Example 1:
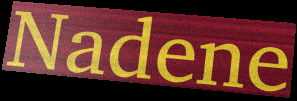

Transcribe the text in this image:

Nadene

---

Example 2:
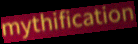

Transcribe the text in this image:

mythification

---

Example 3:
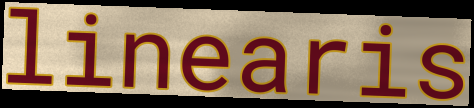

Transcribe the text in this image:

linearis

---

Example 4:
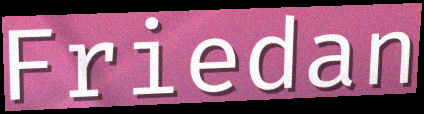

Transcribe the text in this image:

Friedan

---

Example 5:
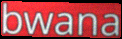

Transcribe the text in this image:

bwana